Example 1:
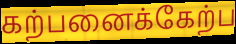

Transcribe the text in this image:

கற்பனைக்கேற்ப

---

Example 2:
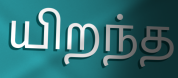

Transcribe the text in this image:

யிறந்த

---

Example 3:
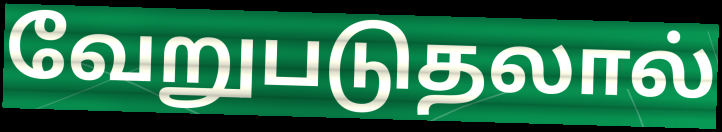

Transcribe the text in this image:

வேறுபடுதலால்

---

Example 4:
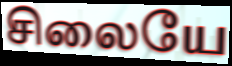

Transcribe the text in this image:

சிலையே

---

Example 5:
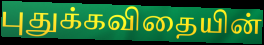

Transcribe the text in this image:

புதுக்கவிதையின்